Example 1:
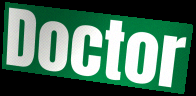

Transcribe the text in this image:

Doctor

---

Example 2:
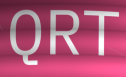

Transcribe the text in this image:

QRT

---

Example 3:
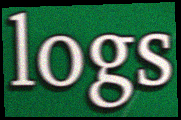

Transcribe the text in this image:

logs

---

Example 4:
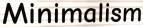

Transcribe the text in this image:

Minimalism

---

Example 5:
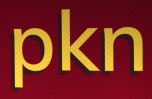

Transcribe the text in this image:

pkn